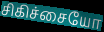
சிகிச்சையோ